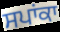
ਸਪਾਂਕਾ